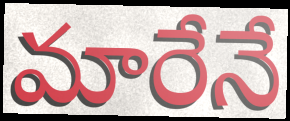
మారేనే